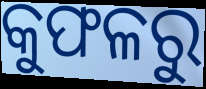
କୁଫଳରୁ